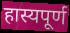
हास्यपूर्ण